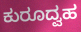
ಕುರೂದ್ವಹ